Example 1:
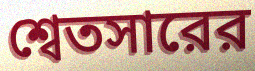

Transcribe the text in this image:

শ্বেতসারের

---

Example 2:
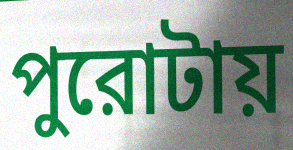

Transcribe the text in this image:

পুরোটায়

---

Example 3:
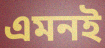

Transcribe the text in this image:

এমনই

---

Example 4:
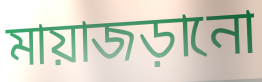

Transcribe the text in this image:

মায়াজড়ানো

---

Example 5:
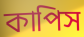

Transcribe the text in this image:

কাপিস